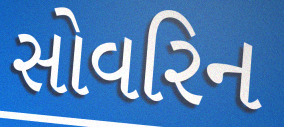
સોવરિન